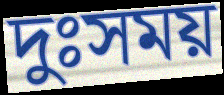
দুঃসময়